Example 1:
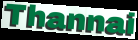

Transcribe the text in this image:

Thannai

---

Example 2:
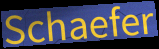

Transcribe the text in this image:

Schaefer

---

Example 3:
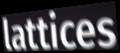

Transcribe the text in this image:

lattices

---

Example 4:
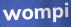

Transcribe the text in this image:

wompi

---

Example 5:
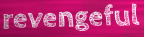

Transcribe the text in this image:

revengeful